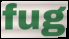
fug